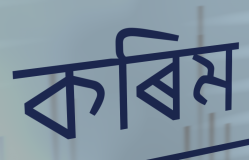
কৰিম